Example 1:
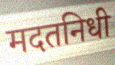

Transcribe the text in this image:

मदतनिधी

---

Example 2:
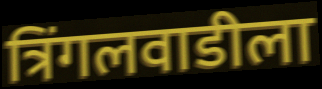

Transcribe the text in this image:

त्रिंगलवाडीला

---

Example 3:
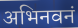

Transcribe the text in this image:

अभिनवनं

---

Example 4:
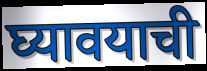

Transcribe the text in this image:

घ्यावयाची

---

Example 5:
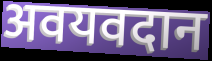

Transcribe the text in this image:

अवयवदान